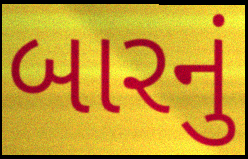
બારનું